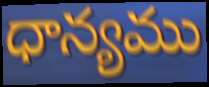
ధాన్యము